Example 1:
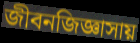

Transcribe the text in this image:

জীবনজিজ্ঞাসায়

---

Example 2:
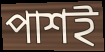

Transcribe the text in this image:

পাশই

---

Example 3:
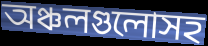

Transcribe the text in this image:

অঞ্চলগুলোসহ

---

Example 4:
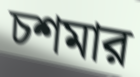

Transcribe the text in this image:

চশমার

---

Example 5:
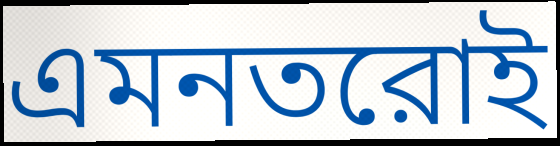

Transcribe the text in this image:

এমনতরোই